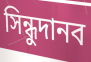
সিন্ধুদানব